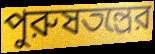
পুরুষতন্ত্রের